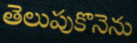
తెలుపుకొనెను